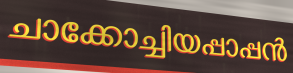
ചാക്കോച്ചിയപ്പാപ്പൻ